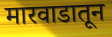
मारवाडातून